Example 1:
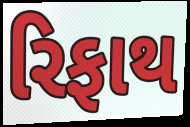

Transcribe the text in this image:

રિફાથ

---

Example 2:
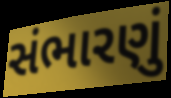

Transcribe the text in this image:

સંભારણું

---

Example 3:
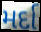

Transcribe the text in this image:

મર્દા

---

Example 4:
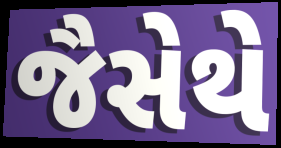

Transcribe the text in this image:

જૈસેથે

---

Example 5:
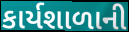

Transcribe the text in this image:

કાર્યશાળાની